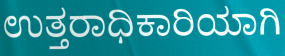
ಉತ್ತರಾಧಿಕಾರಿಯಾಗಿ